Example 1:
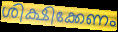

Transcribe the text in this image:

ശിക്ഷിക്കേണം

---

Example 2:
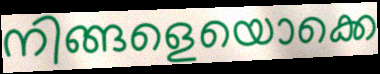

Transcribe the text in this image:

നിങ്ങളെയൊക്കെ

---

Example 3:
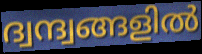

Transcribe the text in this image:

ദ്വന്ദ്വങ്ങളിൽ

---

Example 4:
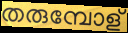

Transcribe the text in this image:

തരുമ്പോള്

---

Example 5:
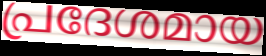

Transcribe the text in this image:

പ്രദേശമായ